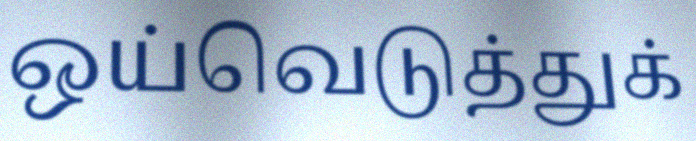
ஒய்வெடுத்துக்